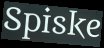
Spiske